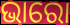
ଭାରୋ